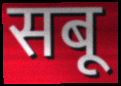
सबू